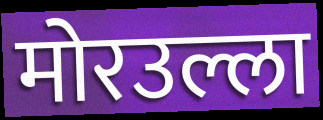
मोरउल्ला